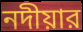
নদীয়ার